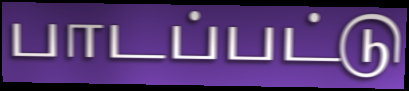
பாடப்பட்டு